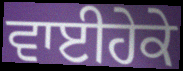
ਵਾਈਹੇਕੇ